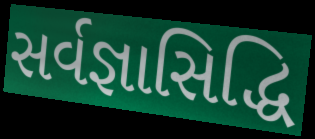
સર્વજ્ઞાસિદ્ધિ